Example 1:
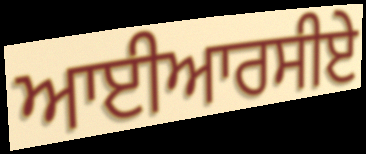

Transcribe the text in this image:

ਆਈਆਰਸੀਏ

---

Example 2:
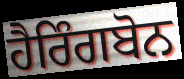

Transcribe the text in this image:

ਹੈਰਿੰਗਬੋਨ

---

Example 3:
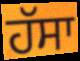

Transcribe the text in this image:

ਹੱਸਾ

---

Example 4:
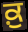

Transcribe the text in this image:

ਕ਼ੁ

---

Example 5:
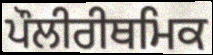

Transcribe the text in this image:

ਪੌਲੀਰੀਥਮਿਕ